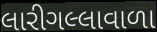
લારીગલ્લાવાળા